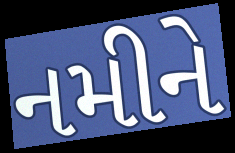
નમીને